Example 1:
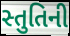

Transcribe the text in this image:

સ્તુતિની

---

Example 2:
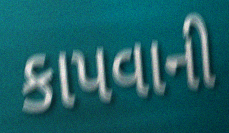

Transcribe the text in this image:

કાપવાની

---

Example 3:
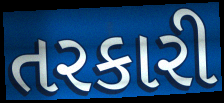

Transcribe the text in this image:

તરકારી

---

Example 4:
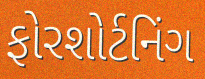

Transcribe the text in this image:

ફોરશોર્ટનિંગ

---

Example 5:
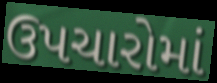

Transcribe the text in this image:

ઉપચારોમાં